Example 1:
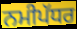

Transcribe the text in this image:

ਨਮੀਪੱਧਰ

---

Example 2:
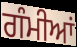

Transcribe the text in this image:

ਗੰਮੀਆਂ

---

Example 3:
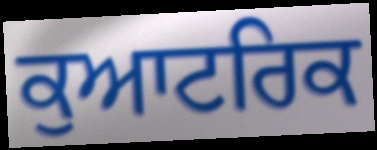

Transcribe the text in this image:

ਕੁਆਟਰਿਕ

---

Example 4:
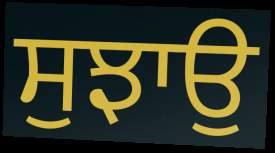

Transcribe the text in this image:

ਸੁਝਾਉ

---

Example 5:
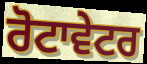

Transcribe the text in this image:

ਰੋਟਾਵੇਟਰ